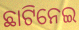
ଛାଟିନେଇ